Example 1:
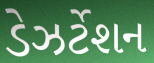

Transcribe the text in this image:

ડેઝર્ટેશન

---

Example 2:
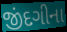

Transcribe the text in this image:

જીંદગીના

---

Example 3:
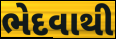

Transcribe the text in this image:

ભેદવાથી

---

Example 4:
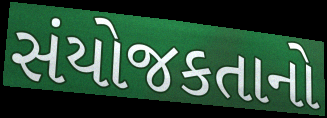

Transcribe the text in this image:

સંયોજકતાનો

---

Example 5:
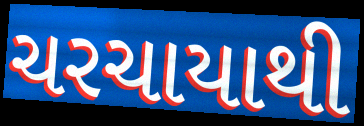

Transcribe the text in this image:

ચરચાયાથી